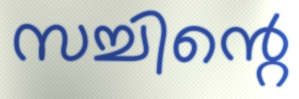
സച്ചിന്റെ